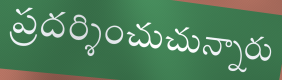
ప్రదర్శించుచున్నారు